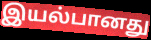
இயல்பானது